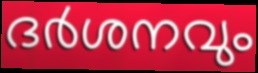
ദർശനവും